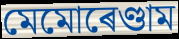
মেমোৰেণ্ডাম